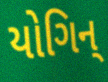
યોગિન્